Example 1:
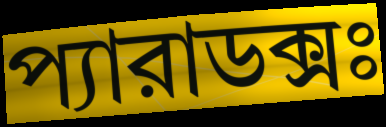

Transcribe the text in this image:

প্যারাডক্সঃ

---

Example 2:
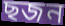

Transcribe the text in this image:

ছজন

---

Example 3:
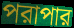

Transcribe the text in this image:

পরাপার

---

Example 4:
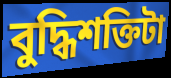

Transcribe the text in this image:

বুদ্ধিশক্তিটা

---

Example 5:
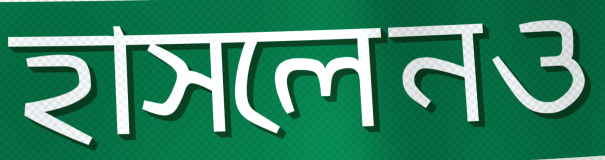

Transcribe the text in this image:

হাসলেনও